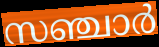
സഞ്ചാർ